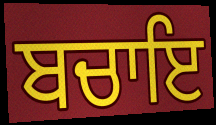
ਬਚਾਇ